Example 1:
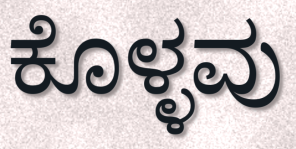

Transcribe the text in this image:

ಕೊಳ್ಳವು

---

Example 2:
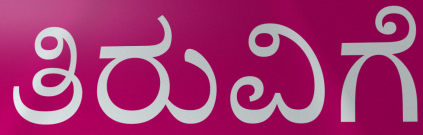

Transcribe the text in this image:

ತಿರುವಿಗೆ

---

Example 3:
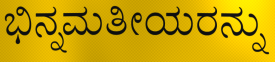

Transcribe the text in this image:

ಭಿನ್ನಮತೀಯರನ್ನು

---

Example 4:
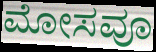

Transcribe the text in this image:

ಮೋಸವೂ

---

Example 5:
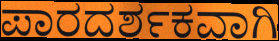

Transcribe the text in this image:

ಪಾರದರ್ಶಕವಾಗಿ